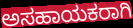
ಅಸಹಾಯಕರಾಗಿ